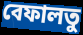
বেফালতু